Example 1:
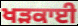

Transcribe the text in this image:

ਖੜਕਾਈ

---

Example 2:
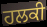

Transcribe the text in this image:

ਹਲਕੀ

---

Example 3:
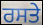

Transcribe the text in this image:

ਰਸਤੇ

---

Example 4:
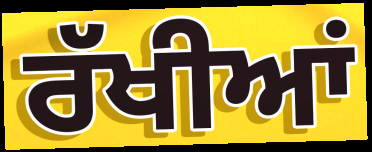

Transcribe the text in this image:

ਰੱਖੀਆਂ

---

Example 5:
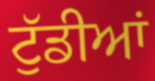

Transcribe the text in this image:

ਟੁੱਡੀਆਂ